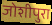
जोशीपुरा